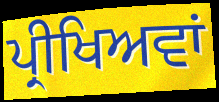
ਪ੍ਰੀਖਿਅਵਾਂ